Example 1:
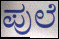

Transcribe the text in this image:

ಪುಲೆ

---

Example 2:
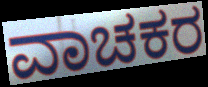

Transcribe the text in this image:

ವಾಚಕರ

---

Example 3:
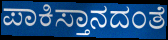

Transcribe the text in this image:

ಪಾಕಿಸ್ತಾನದಂತೆ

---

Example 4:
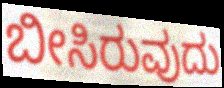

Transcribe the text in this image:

ಬೀಸಿರುವುದು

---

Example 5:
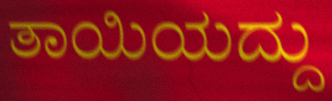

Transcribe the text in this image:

ತಾಯಿಯದ್ದು